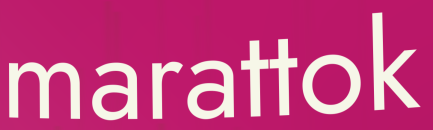
marattok